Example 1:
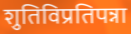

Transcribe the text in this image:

श्रुतिविप्रतिपन्ना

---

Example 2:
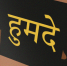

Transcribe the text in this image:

हुमदे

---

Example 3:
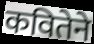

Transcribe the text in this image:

कवितेने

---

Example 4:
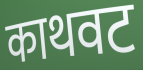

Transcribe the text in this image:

काथवट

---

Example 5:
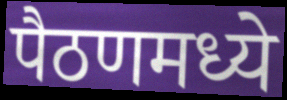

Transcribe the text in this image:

पैठणमध्ये